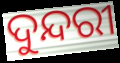
ଦୁନ୍ଦରୀ